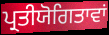
ਪ੍ਰਤੀਯੋਗਿਤਾਵਾਂ